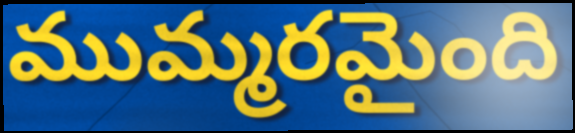
ముమ్మరమైంది